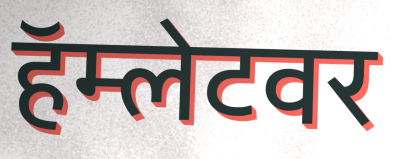
हॅम्लेटवर